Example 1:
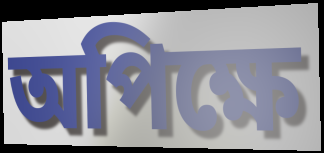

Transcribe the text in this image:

অপিক্ষে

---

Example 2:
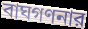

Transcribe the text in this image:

বাঘগণনার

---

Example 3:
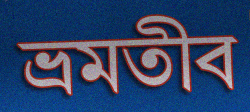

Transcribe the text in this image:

ভ্রমতীব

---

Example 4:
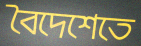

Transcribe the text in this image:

বৈদেশেতে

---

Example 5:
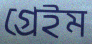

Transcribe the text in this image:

গ্রেইম